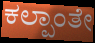
ಕಲ್ಪಾಂತೇ